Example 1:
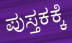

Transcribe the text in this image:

ಪುಸ್ತಕಕ್ಕೆ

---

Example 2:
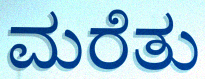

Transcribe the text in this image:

ಮರೆತು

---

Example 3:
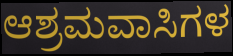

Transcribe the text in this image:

ಆಶ್ರಮವಾಸಿಗಳ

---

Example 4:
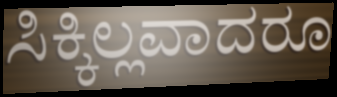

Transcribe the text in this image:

ಸಿಕ್ಕಿಲ್ಲವಾದರೂ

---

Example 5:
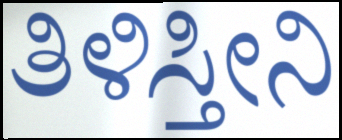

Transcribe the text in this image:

ತಿಳಿಸ್ತೀನಿ